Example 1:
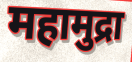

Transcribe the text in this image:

महामुद्रा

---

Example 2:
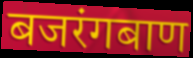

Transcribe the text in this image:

बजरंगबाण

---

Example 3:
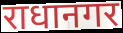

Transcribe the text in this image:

राधानगर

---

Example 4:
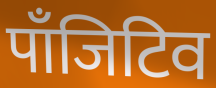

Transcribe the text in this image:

पाँजिटिव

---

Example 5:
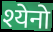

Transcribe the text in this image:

श्येनो